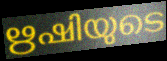
ഋഷിയുടെ